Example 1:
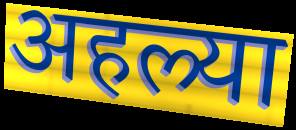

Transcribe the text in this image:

अहल्या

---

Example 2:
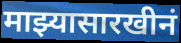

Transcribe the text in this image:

माझ्यासारखीनं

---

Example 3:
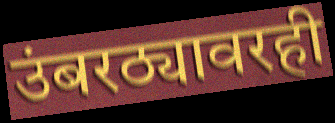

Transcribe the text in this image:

उंबरठ्यावरही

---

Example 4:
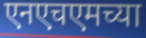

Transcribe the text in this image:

एनएचएमच्या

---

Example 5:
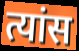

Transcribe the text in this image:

त्यांस